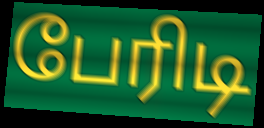
பேரிடி